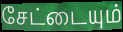
சேட்டையும்